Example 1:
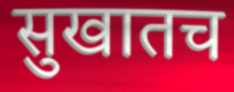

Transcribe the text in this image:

सुखातच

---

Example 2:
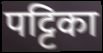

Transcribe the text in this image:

पट्टिका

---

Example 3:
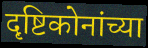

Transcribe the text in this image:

दृष्टिकोनांच्या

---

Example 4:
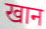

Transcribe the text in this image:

खान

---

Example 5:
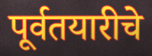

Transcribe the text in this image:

पूर्वतयारीचे